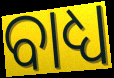
ବାଧ୍ୟ